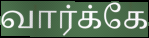
வார்க்கே